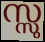
സ്സു